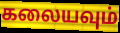
கலையவும்